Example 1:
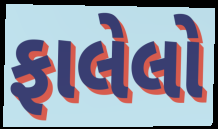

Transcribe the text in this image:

ફાલેલો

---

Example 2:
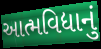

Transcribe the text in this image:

આત્મવિદ્યાનું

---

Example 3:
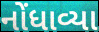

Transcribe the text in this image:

નોંધાવ્યા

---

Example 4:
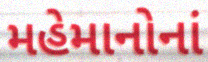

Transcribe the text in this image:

મહેમાનોનાં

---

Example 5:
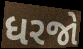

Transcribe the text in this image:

ધરજો